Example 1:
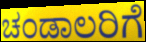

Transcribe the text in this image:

ಚಂಡಾಲರಿಗೆ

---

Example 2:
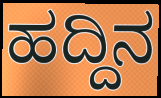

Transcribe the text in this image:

ಹದ್ದಿನ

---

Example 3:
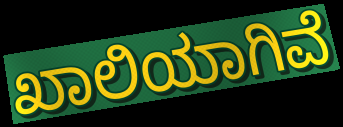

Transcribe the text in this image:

ಖಾಲಿಯಾಗಿವೆ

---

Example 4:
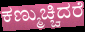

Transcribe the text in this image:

ಕಣ್ಮುಚ್ಚಿದರೆ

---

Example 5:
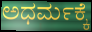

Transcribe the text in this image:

ಅಧರ್ಮಕ್ಕೆ